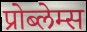
प्रोब्लेम्स